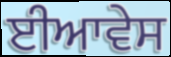
ਈਆਵੇਸ